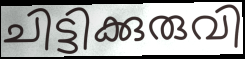
ചിട്ടിക്കുരുവി